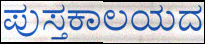
ಪುಸ್ತಕಾಲಯದ